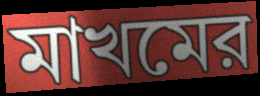
মাখমের